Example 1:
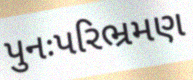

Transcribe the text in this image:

પુનઃપરિભ્રમણ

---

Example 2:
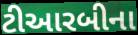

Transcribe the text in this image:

ટીઆરબીના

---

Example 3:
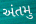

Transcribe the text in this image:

અંતમુ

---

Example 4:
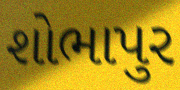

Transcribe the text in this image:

શોભાપુર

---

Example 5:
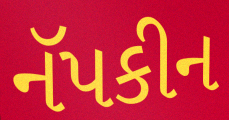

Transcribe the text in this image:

નૅપકીન